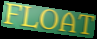
FLOAT